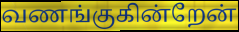
வணங்குகின்றேன்